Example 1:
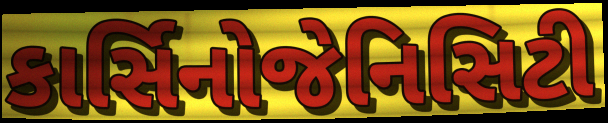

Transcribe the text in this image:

કાર્સિનોજેનિસિટી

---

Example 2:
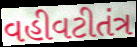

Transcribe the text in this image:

વહીવટીતંત્ર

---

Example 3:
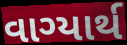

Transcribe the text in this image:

વાગ્યાર્થ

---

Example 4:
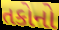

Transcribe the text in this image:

તકોનો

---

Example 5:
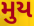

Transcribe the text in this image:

મુય